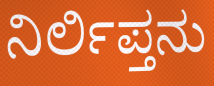
ನಿರ್ಲಿಪ್ತನು